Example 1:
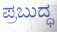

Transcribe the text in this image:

ಪ್ರಬುದ್ಧ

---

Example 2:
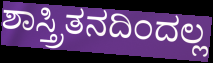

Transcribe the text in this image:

ಶಾಸ್ತ್ರಿತನದಿಂದಲ್ಲ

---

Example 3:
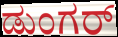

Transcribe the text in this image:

ಡುಂಗರ್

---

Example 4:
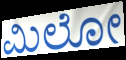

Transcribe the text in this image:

ಮಿಲೋ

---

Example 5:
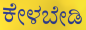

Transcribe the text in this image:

ಕೇಳಬೇಡಿ